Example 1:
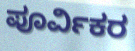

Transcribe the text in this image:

ಪೂರ್ವಿಕರ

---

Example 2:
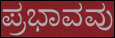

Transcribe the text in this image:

ಪ್ರಭಾವವು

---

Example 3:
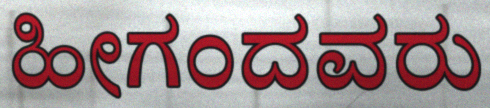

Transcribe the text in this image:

ಹೀಗಂದವರು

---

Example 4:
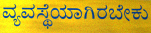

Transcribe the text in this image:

ವ್ಯವಸ್ಥೆಯಾಗಿರಬೇಕು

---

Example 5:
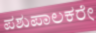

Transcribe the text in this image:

ಪಶುಪಾಲಕರೇ